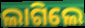
ଲାଗିଲେ